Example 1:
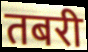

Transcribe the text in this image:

तबरी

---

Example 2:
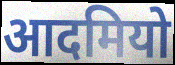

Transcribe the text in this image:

आदमियो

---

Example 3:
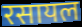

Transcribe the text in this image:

रसायल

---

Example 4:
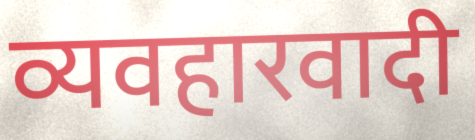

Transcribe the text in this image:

व्यवहारवादी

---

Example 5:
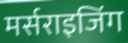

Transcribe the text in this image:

मर्सराइजिंग